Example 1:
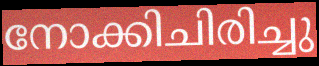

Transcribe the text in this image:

നോക്കിചിരിച്ചു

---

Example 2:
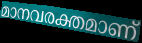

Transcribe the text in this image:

മാനവരക്തമാണ്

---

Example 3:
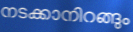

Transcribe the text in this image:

നടക്കാനിറങ്ങും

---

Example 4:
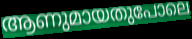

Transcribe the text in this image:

ആണുമായതുപോലെ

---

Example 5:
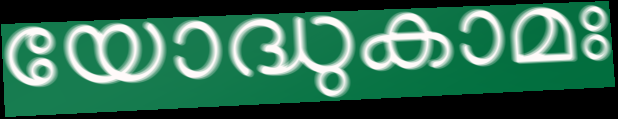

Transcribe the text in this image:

യോദ്ധുകാമഃ